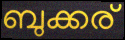
ബുക്കര്